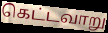
கெட்டவாறு